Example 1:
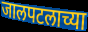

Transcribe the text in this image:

जालपटलाच्या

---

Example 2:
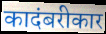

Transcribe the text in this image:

कादंबरीकार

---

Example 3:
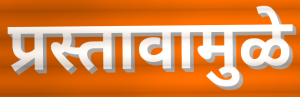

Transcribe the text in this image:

प्रस्तावामुळे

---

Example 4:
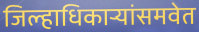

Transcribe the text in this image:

जिल्हाधिकाऱ्यांसमवेत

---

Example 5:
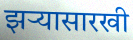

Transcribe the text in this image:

झर्‍यासारखी